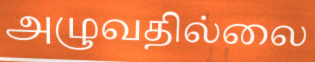
அழுவதில்லை